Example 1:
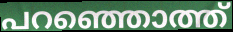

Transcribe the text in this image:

പറഞ്ഞൊത്ത്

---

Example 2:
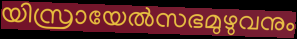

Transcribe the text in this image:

യിസ്രായേൽസഭമുഴുവനും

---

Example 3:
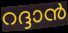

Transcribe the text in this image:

റദ്ദാൻ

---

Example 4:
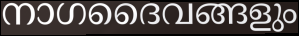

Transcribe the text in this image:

നാഗദൈവങ്ങളും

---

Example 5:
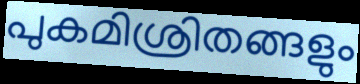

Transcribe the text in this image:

പുകമിശ്രിതങ്ങളും